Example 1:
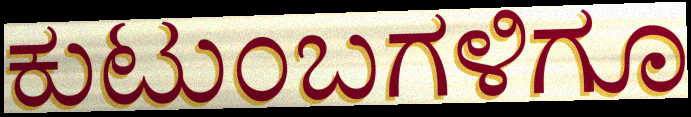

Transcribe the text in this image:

ಕುಟುಂಬಗಳಿಗೂ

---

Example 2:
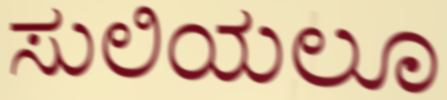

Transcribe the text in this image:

ಸುಲಿಯಲೂ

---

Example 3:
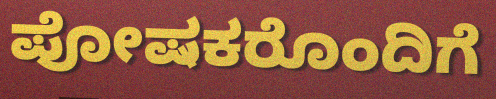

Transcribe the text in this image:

ಪೋಷಕರೊಂದಿಗೆ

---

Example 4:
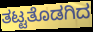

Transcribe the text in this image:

ತಟ್ಟತೊಡಗಿದ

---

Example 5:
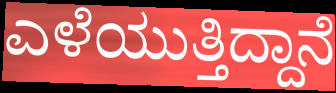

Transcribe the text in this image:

ಎಳೆಯುತ್ತಿದ್ದಾನೆ